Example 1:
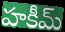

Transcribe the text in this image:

హకీమ్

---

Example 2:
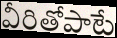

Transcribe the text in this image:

వీరితోపాటే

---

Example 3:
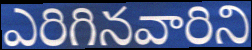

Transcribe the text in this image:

ఎరిగినవారిని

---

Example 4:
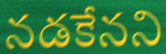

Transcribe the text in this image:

నడకేనని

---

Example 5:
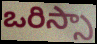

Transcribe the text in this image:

ఒరిస్సా